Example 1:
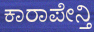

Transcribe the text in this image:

ಕಾರಾಪೇನ್ತಿ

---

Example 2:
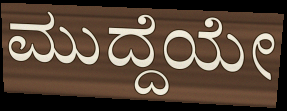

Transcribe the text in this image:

ಮುದ್ದೆಯೇ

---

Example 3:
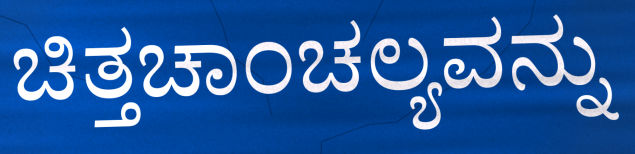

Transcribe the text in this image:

ಚಿತ್ತಚಾಂಚಲ್ಯವನ್ನು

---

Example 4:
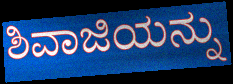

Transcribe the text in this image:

ಶಿವಾಜಿಯನ್ನು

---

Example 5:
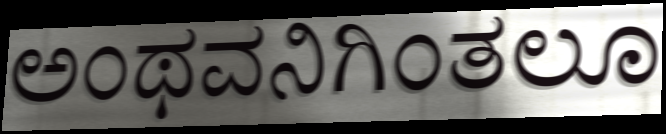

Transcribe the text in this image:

ಅಂಥವನಿಗಿಂತಲೂ